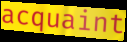
acquaint